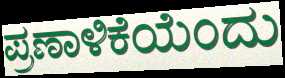
ಪ್ರಣಾಳಿಕೆಯೆಂದು